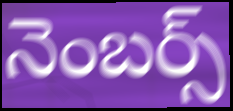
నెంబర్స్